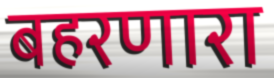
बहरणारा